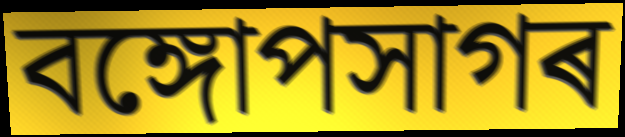
বঙ্গোপসাগৰ